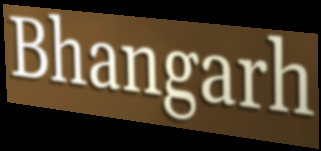
Bhangarh